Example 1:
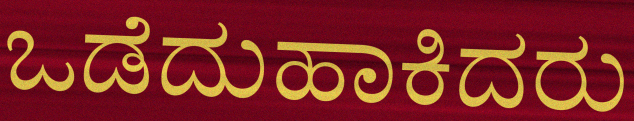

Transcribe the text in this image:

ಒಡೆದುಹಾಕಿದರು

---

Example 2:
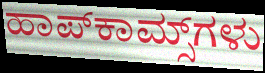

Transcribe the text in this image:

ಹಾಪ್‌ಕಾಮ್ಸ್‌ಗಳು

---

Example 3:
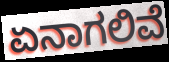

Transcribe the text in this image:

ಏನಾಗಲಿವೆ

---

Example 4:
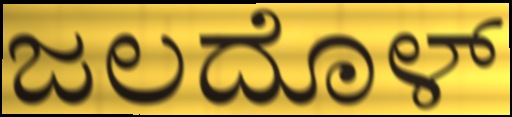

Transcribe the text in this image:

ಜಲದೊಳ್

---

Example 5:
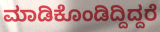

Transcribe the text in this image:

ಮಾಡಿಕೊಂಡಿದ್ದಿದ್ದರೆ